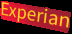
Experian